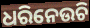
ଧରିନେଉଚି